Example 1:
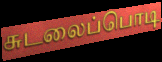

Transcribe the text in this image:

சுடலைப்பொடி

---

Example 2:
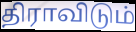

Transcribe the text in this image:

திராவிடும்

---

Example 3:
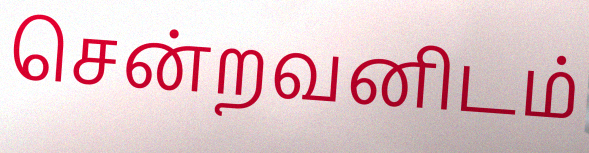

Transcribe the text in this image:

சென்றவனிடம்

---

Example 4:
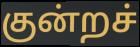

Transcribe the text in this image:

குன்றச்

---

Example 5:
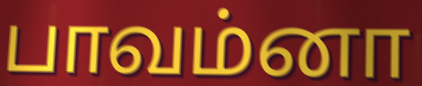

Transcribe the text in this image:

பாவம்னா